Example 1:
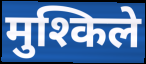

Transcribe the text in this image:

मुश्किले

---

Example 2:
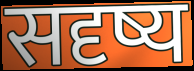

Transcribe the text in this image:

सदृष्य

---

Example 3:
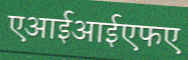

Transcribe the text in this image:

एआईआईएफए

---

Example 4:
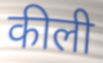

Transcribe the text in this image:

कीली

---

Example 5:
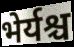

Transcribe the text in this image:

भेर्यश्च